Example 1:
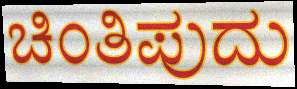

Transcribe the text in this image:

ಚಿಂತಿಪುದು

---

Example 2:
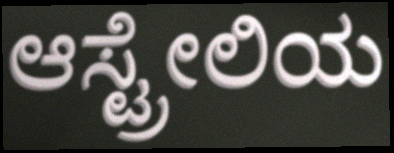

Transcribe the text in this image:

ಆಸ್ಟ್ರೇಲಿಯ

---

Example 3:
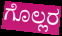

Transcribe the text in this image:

ಗೊಲ್ಲರ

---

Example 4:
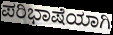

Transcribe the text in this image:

ಪರಿಭಾಷೆಯಾಗಿ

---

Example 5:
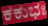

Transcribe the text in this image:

ಕಕುಭಃ